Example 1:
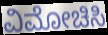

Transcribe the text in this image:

ವಿಮೋಚಿಸಿ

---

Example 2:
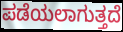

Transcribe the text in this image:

ಪಡೆಯಲಾಗುತ್ತದೆ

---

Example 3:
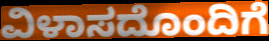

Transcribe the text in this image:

ವಿಳಾಸದೊಂದಿಗೆ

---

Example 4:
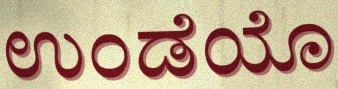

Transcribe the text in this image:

ಉಂಡೆಯೊ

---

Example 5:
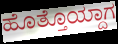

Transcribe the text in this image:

ಹೊತ್ತೊಯ್ದಾಗ